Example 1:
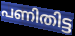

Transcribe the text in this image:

പണിതിട്ട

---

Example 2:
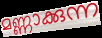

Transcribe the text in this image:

മണ്ണാക്കുന്ന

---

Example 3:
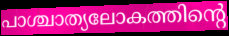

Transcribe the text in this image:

പാശ്ചാത്യലോകത്തിന്റെ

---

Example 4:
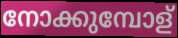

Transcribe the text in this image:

നോക്കുമ്പോള്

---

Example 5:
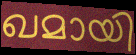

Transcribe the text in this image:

ഖമായി